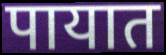
पायात